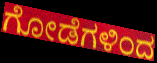
ಗೋಡೆಗಳಿಂದ